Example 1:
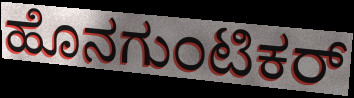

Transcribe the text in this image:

ಹೊನಗುಂಟಿಕರ್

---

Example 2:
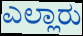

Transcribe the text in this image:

ಎಲ್ಲಾರು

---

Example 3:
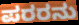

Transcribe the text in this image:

ಪರರನು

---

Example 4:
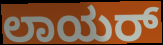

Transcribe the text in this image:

ಲಾಯರ್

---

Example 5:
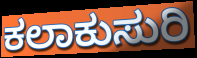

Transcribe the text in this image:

ಕಲಾಕುಸುರಿ